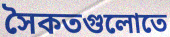
সৈকতগুলোতে